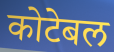
कोटेबल